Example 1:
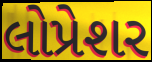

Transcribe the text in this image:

લોપ્રેશર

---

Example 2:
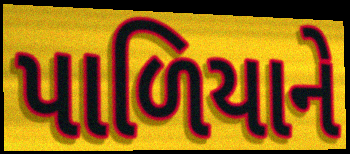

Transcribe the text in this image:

પાળિયાને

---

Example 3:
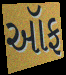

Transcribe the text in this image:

ઑફ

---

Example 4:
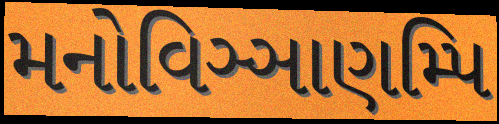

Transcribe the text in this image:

મનોવિઞ્ઞાણમ્પિ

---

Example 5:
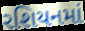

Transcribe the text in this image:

રશિયનમાં